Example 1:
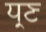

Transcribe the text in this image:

ਧ੍ਰਣ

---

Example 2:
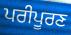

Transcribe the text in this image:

ਪਰੀਪੂਰਣ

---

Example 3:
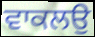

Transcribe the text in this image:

ਵਾਕਲਉ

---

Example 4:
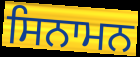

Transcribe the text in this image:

ਸਿਨਾਮਨ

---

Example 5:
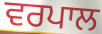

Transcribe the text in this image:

ਵਰਪਾਲ